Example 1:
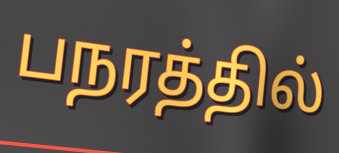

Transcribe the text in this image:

பநரத்தில்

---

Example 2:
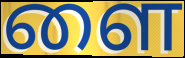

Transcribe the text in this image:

ளை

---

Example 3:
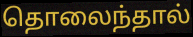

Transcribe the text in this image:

தொலைந்தால்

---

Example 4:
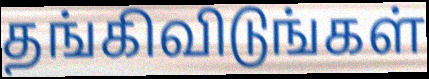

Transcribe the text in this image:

தங்கிவிடுங்கள்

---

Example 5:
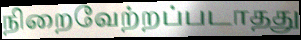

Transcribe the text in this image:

நிறைவேற்றப்படாதது